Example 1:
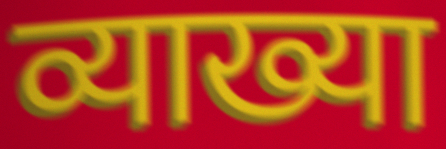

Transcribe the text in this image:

व्याख्‍या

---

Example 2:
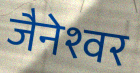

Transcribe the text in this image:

जैनेश्वर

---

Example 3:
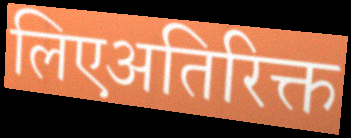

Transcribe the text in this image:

लिएअतिरिक्त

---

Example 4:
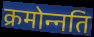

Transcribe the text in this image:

क्रमोन्नति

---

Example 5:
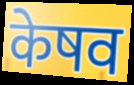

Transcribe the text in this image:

केषव